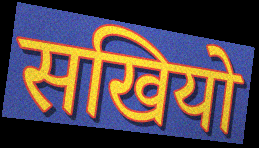
सखियो